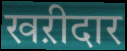
खऱीदार